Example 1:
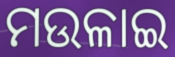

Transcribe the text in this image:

ମଉଳାଇ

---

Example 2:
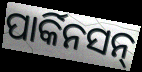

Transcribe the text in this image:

ପାର୍କିନସନ୍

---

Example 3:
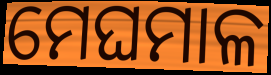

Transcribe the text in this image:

ମେଘମାଳ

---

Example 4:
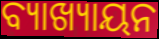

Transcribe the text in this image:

ବ୍ୟାଖ୍ୟାୟନ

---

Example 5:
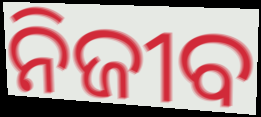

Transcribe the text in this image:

ନିଜୀବ